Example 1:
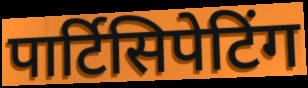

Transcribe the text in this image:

पार्टिसिपेटिंग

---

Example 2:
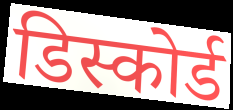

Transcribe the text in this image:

डिस्कोर्ड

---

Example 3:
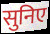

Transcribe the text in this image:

सुनिए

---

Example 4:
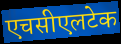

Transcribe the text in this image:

एचसीएलटेक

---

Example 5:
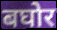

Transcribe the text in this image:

बघोर